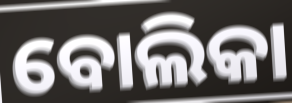
ବୋଲିକା